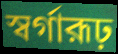
স্বর্গারূঢ়